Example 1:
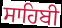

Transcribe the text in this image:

ਸਾਹਿਬੀ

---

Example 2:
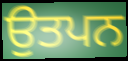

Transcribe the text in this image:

ਉਤਪਨ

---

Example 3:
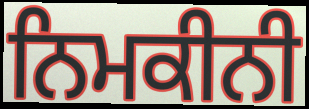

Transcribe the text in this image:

ਨਿਮਕੀਨੀ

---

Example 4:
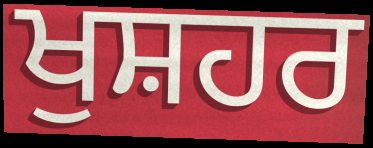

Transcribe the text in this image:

ਖੁਸ਼ਹਰ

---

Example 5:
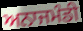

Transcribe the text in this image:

ਅਨਾਜਮੰਡੀ